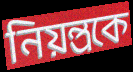
নিয়ন্ত্রকে